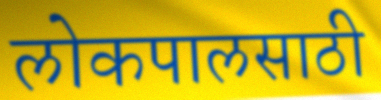
लोकपालसाठी